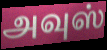
அவுஸ்